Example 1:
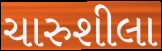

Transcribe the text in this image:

ચારુશીલા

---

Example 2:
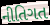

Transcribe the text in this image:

નીતિગત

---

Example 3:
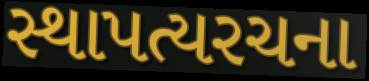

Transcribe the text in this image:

સ્થાપત્યરચના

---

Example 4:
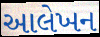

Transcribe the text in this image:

આલેખન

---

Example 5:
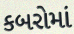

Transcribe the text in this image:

કબરોમાં